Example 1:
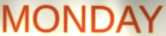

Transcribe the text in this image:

MONDAY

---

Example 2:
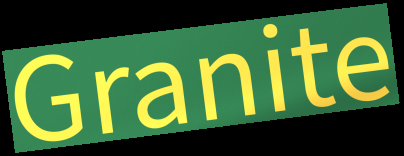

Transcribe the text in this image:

Granite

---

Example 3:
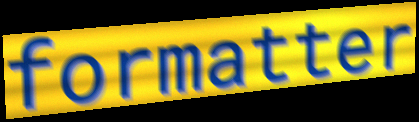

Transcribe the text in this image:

formatter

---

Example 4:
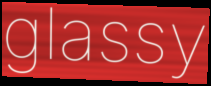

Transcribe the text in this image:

glassy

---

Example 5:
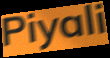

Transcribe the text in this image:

Piyali